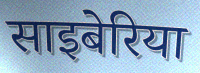
साइबेरिया